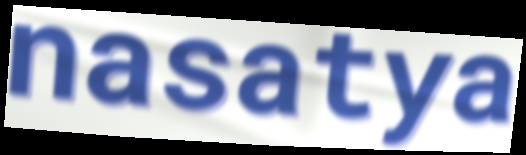
nasatya